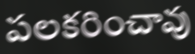
పలకరించావు